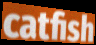
catfish